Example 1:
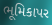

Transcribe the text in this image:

ભૂમિકાપર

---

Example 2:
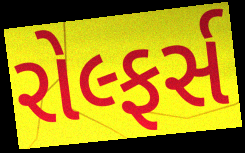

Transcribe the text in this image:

રોલ્ફર્સ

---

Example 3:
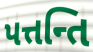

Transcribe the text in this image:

પત્તન્તિ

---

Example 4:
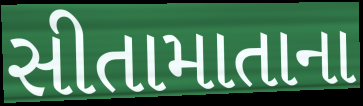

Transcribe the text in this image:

સીતામાતાના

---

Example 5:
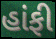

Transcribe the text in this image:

હાંફી